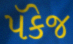
પૅકેજ